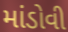
માંડોવી